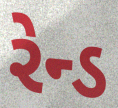
રેન્ડ